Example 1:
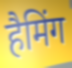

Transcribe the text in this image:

हैमिंग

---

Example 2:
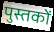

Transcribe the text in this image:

पुस्तकों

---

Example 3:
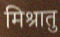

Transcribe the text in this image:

मिश्रातु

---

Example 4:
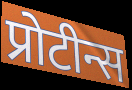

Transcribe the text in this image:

प्रोटीन्स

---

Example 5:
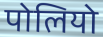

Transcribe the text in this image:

पोलियो